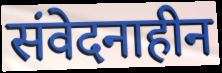
संवेदनाहीन